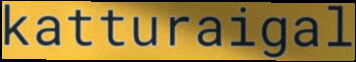
katturaigal